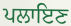
ਪਲਾਇਣ